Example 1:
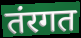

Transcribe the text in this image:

तंरगत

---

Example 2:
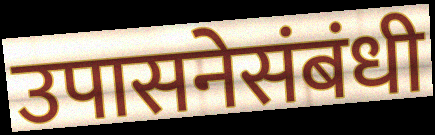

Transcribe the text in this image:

उपासनेसंबंधी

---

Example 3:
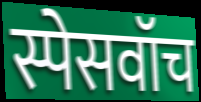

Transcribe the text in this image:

स्पेसवॉच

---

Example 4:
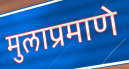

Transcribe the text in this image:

मुलाप्रमाणे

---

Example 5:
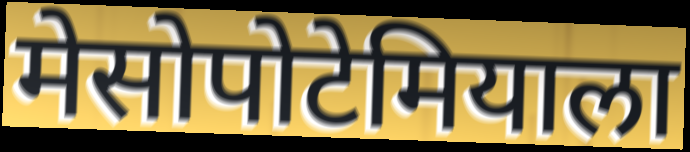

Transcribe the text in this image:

मेसोपोटेमियाला